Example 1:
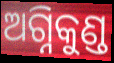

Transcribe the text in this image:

ଅଗ୍ନିକୁଣ୍ଡ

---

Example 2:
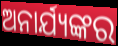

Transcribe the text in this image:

ଅନାର୍ଯ୍ୟଙ୍କର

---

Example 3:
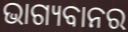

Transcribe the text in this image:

ଭାଗ୍ୟବାନର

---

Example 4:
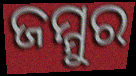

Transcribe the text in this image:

ଜମ୍ମୁର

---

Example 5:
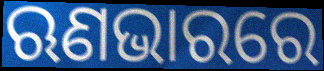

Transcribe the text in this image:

ଋଣଭାରରେ